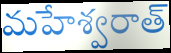
మహేశ్వరాత్